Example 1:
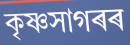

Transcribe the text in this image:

কৃষ্ণসাগৰৰ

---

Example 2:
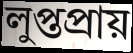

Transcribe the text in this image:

লুপ্তপ্ৰায়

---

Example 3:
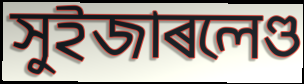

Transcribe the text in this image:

সুইজাৰলেণ্ড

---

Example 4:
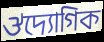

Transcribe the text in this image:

ঔদ্যোগিক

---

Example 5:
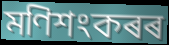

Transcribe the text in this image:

মণিশংকৰৰ